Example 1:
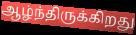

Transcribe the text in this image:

ஆழ்ந்திருக்கிறது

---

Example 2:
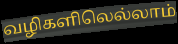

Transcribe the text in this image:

வழிகளிலெல்லாம்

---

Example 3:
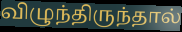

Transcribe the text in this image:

விழுந்திருந்தால்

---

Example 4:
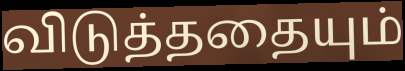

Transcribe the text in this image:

விடுத்ததையும்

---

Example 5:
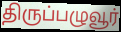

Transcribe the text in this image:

திருப்பழுவூர்